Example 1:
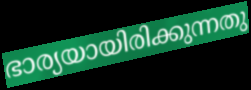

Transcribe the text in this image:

ഭാര്യയായിരിക്കുന്നതു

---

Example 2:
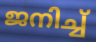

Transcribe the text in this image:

ജനിച്ച്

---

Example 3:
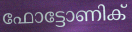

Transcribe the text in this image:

ഫോട്ടോണിക്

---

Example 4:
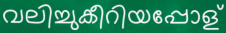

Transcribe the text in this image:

വലിച്ചുകീറിയപ്പോള്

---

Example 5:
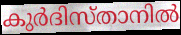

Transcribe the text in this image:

കുർദിസ്താനിൽ